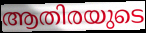
ആതിരയുടെ